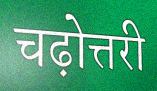
चढ़ोत्तरी